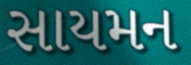
સાયમન